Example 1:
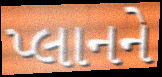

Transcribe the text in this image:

પ્લાનને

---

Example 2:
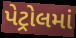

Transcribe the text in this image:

પેટ્રોલમાં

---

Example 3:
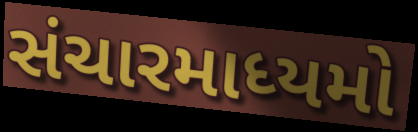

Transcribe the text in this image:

સંચારમાધ્યમો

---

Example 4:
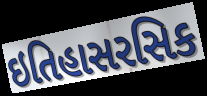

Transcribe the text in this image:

ઇતિહાસરસિક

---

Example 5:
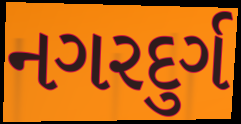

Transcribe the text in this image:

નગરદુર્ગ